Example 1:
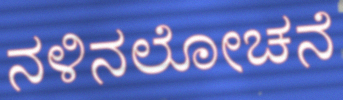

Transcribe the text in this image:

ನಳಿನಲೋಚನೆ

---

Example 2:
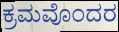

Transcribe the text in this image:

ಕ್ರಮವೊಂದರ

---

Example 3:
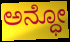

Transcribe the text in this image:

ಅನ್ಧೋ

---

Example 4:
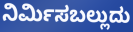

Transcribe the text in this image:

ನಿರ್ಮಿಸಬಲ್ಲುದು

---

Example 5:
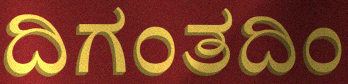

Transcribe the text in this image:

ದಿಗಂತದಿಂ